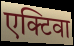
एक्टिवा